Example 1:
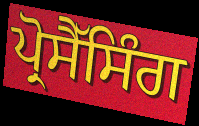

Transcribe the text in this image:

ਪ੍ਰੋਸੈੱਸਿੰਗ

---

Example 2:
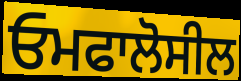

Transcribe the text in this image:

ਓਮਫਾਲੋਸੀਲ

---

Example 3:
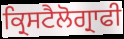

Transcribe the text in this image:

ਕ੍ਰਿਸਟੈਲੋਗ੍ਰਾਫੀ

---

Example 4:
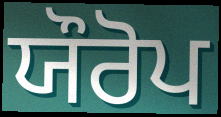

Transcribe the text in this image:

ਯੌਰੋਪ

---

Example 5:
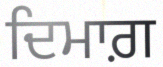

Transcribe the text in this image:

ਦਿਮਾਗ਼